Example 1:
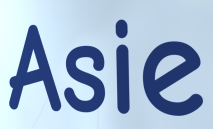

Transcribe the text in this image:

Asie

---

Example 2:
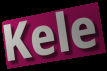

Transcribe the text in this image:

Kele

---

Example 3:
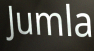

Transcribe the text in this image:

Jumla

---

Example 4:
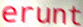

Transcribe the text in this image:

erunt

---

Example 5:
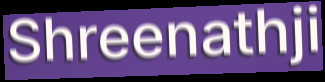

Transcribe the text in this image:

Shreenathji